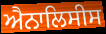
ਐਨਾਲਿਸੀਸ